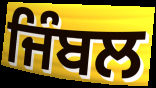
ਜਿੰਬਲ